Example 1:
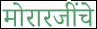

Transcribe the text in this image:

मोरारजींचे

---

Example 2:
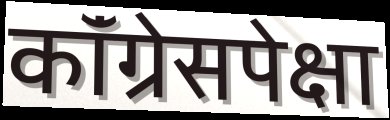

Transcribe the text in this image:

कॉंग्रेसपेक्षा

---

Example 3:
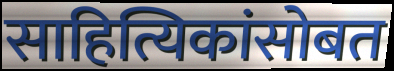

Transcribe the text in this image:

साहित्यिकांसोबत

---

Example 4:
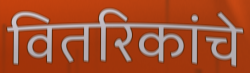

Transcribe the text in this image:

वितरिकांचे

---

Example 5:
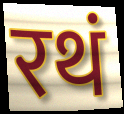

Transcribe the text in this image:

रथं